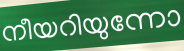
നീയറിയുന്നോ